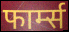
फार्म्स